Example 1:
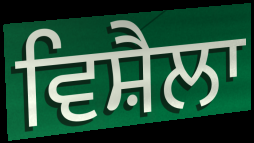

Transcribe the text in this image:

ਵਿਸ਼ੈਲਾ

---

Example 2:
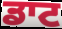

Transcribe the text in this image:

ਡਾਟ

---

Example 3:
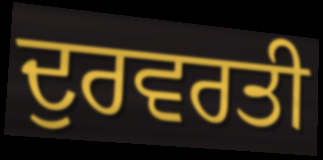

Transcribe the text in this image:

ਦੁਰਵਰਤੀ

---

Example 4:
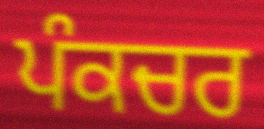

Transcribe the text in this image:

ਪੰਕਚਰ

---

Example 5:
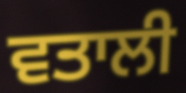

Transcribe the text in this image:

ਵਤਾਲੀ